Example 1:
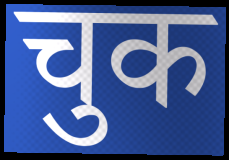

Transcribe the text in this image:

चुक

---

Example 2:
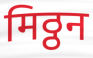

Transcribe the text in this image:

मिठ्ठन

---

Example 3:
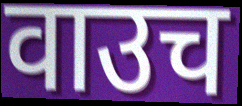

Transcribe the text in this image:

वाउच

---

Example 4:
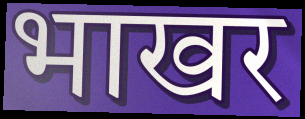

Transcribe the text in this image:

भाखर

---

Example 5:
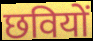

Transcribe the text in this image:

छवियों